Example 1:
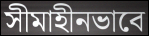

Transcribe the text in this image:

সীমাহীনভাবে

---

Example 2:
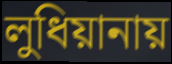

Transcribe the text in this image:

লুধিয়ানায়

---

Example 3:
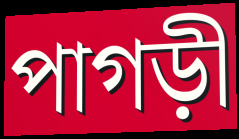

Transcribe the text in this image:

পাগড়ী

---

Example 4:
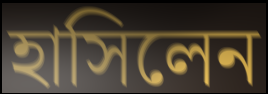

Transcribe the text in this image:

হাসিলেন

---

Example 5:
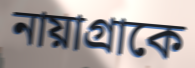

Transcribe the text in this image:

নায়াগ্রাকে